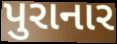
પુરાનાર